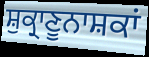
ਸ਼ੁਕ੍ਰਾਣੂਨਾਸ਼ਕਾਂ